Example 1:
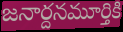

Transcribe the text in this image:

జనార్దనమూర్తికి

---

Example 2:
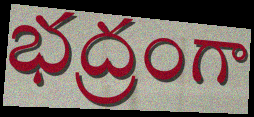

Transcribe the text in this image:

భద్రంగా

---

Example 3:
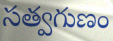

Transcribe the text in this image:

సత్వగుణం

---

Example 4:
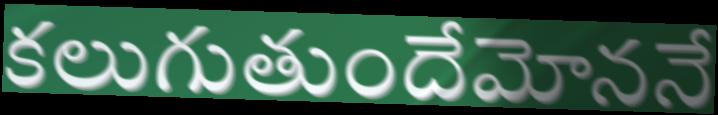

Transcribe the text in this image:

కలుగుతుందేమోననే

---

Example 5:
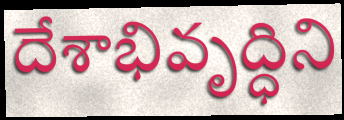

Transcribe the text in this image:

దేశాభివృద్ధిని